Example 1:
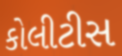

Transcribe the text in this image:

કોલીટીસ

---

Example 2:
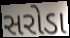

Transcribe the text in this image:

સરોડા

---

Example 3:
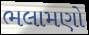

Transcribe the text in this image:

ભલામણો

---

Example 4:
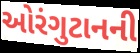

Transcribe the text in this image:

ઓરંગુટાનની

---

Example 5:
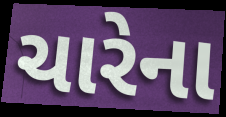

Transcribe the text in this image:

ચારેના